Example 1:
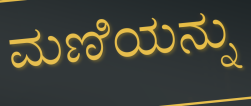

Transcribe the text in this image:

ಮಣಿಯನ್ನು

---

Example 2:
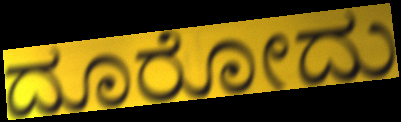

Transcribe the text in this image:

ದೂರೋದು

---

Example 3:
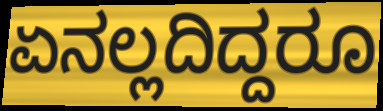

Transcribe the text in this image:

ಏನಲ್ಲದಿದ್ದರೂ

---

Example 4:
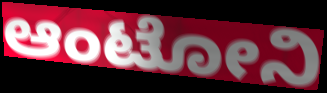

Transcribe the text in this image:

ಆಂಟೋನಿ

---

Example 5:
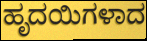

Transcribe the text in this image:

ಹೃದಯಿಗಳಾದ